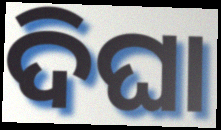
ଦିଘା